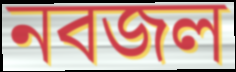
নবজল